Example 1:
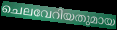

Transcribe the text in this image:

ചെലവേറിയതുമായ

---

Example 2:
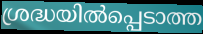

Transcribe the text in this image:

ശ്രദ്ധയിൽപ്പെടാത്ത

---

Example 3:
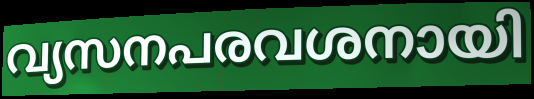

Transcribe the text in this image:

വ്യസനപരവശനായി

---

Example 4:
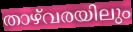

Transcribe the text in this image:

താഴ്‌വരയിലും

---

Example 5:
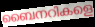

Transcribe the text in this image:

ബൈനറികളെ